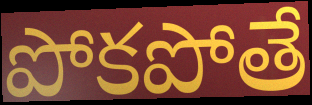
పోకపోతే